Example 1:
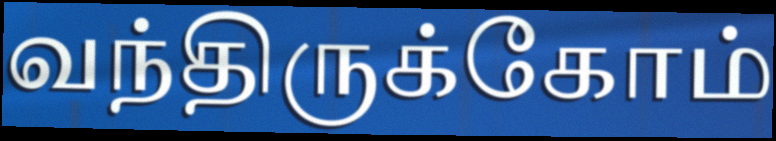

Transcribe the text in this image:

வந்திருக்கோம்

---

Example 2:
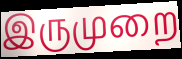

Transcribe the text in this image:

இருமுறை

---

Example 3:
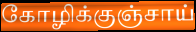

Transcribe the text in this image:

கோழிக்குஞ்சாய்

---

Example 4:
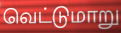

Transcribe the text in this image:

வெட்டுமாறு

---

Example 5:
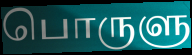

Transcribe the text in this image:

பொருளு